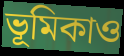
ভূমিকাও